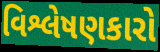
વિશ્લેષણકારો